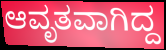
ಆವೃತವಾಗಿದ್ದ